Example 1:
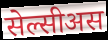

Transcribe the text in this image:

सेल्सीअस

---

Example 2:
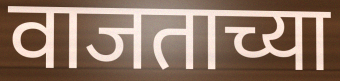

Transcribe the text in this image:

वाजताच्या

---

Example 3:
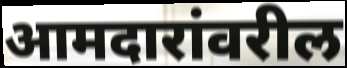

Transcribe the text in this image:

आमदारांवरील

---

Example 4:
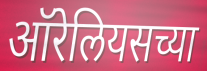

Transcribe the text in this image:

ऑरेलियसच्या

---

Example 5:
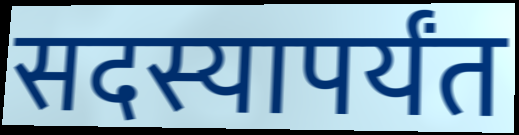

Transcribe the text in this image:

सदस्यापर्यंत